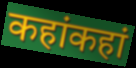
कहांकहां